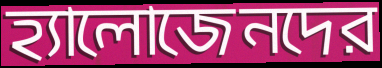
হ্যালোজেনদের